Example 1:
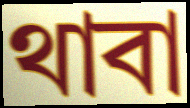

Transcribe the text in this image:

থাবা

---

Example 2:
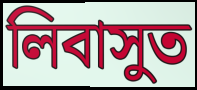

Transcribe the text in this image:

লিবাসুত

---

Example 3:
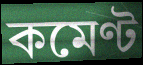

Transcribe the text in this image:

কমেণ্ট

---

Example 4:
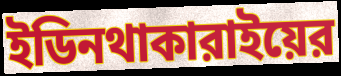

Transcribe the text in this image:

ইডিনথাকারাইয়ের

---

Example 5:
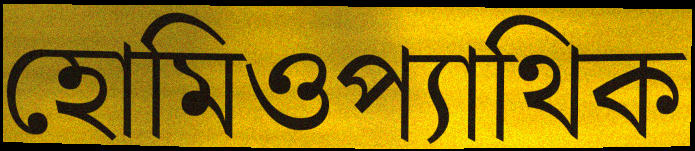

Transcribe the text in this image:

হোমিওপ্যাথিক